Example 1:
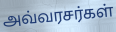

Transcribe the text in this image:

அவ்வரசர்கள்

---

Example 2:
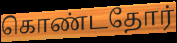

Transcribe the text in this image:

கொண்டதோர்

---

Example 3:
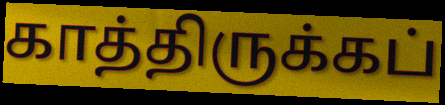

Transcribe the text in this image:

காத்திருக்கப்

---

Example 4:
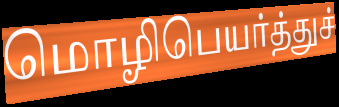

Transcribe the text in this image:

மொழிபெயர்த்துச்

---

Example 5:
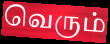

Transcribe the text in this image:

வெரும்